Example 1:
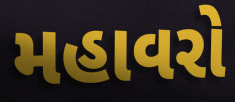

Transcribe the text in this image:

મહાવરો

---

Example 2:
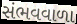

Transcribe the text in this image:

સંભવવાળા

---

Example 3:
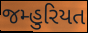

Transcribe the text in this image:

જમ્હુરિયત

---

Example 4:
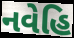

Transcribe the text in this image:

નવેહિ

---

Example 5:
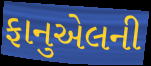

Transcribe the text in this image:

ફાનુએલની